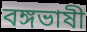
বঙ্গভাষী